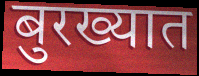
बुरख्यात